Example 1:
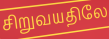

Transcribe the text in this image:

சிறுவயதிலே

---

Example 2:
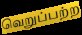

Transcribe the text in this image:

வெறுப்பற்ற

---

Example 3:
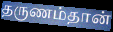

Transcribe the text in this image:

தருணம்தான்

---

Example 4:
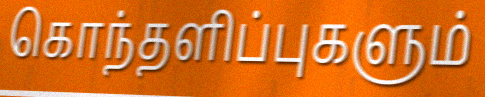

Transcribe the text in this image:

கொந்தளிப்புகளும்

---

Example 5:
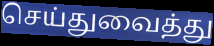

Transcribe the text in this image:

செய்துவைத்து